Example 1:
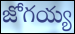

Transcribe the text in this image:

జోగయ్య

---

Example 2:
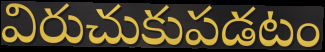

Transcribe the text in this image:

విరుచుకుపడటం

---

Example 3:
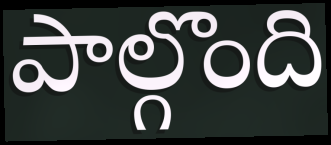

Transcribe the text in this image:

పాల్గొంది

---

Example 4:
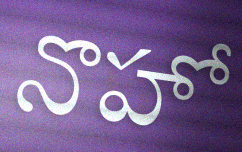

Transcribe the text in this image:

నొహో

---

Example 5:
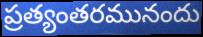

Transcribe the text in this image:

ప్రత్యంతరమునందు